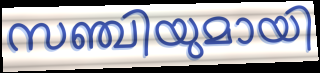
സഞ്ചിയുമായി